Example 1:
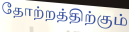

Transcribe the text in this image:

தோற்றத்திற்கும்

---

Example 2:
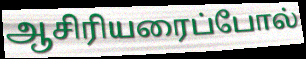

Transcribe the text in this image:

ஆசிரியரைப்போல்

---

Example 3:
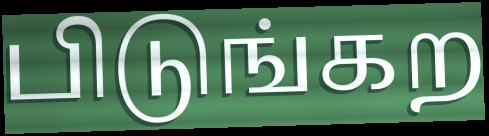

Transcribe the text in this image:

பிடுங்கற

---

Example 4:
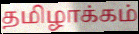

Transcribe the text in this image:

தமிழாக்கம்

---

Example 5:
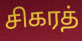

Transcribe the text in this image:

சிகரத்